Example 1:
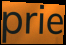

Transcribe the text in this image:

prie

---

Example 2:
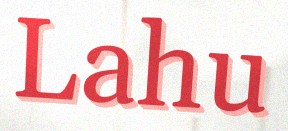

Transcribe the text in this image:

Lahu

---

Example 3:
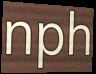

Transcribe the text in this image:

nph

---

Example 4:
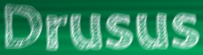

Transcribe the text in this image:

Drusus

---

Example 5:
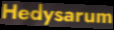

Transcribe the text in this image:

Hedysarum